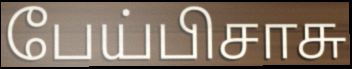
பேய்பிசாசு